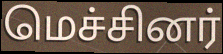
மெச்சினர்